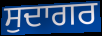
ਸੁਦਾਗਰ